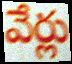
వేర్లు